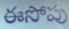
ఈసోపు